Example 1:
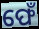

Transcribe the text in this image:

ଫେଁ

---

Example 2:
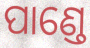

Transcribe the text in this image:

ପାଣ୍ଡେ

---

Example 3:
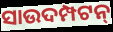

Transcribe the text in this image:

ସାଉଦମ୍ପଟନ୍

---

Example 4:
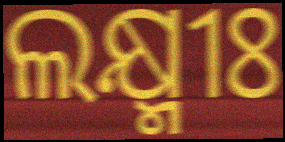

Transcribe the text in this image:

ଲକ୍ଷ୍ମୀଃ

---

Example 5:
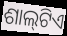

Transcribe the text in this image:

ଶାଲ୍‌ଟିଏ